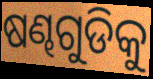
ଷଣ୍ଢଗୁଡିକୁ